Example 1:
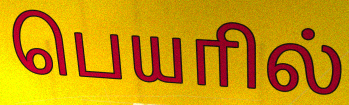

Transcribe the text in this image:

பெயரில்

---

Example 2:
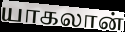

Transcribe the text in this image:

யாகலான்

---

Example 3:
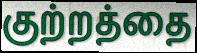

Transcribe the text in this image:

குற்றத்தை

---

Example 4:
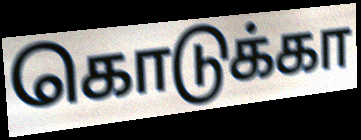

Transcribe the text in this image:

கொடுக்கா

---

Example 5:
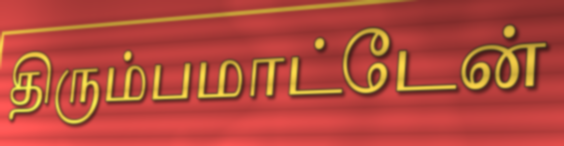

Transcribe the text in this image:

திரும்பமாட்டேன்